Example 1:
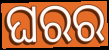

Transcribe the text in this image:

ଘରର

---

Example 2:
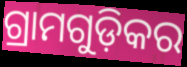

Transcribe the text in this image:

ଗ୍ରାମଗୁଡ଼ିକର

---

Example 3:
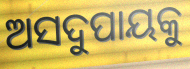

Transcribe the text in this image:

ଅସଦୁପାୟକୁ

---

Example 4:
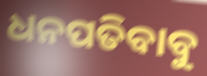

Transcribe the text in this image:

ଧନପତିବାବୁ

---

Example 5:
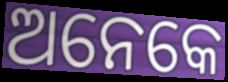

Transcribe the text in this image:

ଅନେକେ